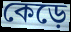
কেড়ে